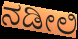
ನಡೀಲಿ